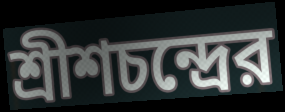
শ্রীশচন্দ্রের